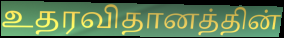
உதரவிதானத்தின்